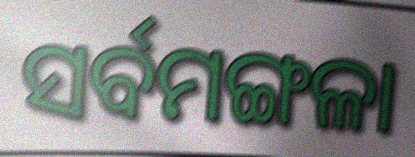
ସର୍ବମଙ୍ଗଳା